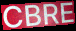
CBRE